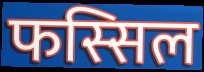
फस्सिल